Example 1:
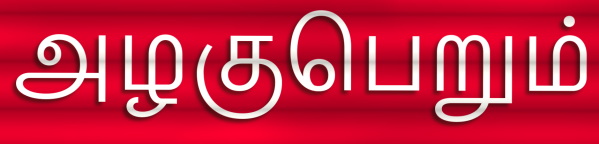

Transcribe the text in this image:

அழகுபெறும்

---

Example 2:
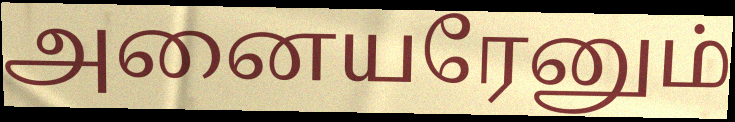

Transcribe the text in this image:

அனையரேனும்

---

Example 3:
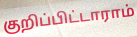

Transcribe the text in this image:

குறிப்பிட்டாராம்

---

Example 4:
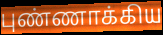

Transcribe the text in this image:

புண்ணாக்கிய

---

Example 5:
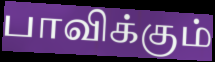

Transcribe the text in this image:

பாவிக்கும்